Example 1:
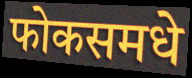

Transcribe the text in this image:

फोकसमधे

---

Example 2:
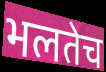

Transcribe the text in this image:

भलतेच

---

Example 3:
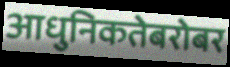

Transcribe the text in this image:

आधुनिकतेबरोबर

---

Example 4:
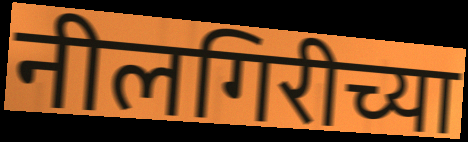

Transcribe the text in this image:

नीलगिरीच्या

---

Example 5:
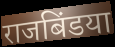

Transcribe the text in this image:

राजबिंडया